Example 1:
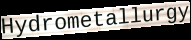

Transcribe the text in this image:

Hydrometallurgy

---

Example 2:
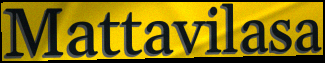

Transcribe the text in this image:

Mattavilasa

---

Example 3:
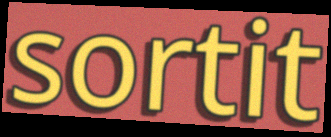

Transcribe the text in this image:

sortit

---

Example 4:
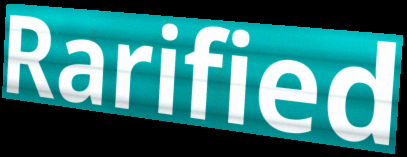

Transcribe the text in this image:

Rarified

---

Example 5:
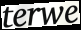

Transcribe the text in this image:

terwe